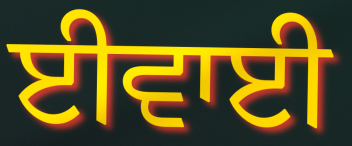
ਈਵਾਈ